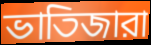
ভাতিজারা